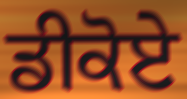
ਡੀਕੋਏ